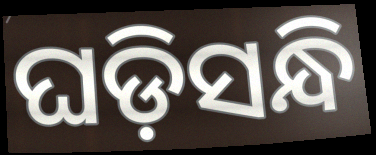
ଘଡ଼ିସନ୍ଧି